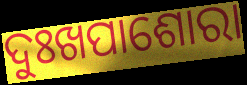
ଦୁଃଖପାଶୋରା